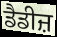
ਡੈਡੀਜ਼